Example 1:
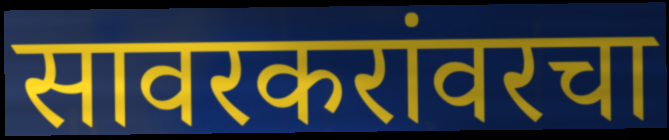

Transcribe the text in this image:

सावरकरांवरचा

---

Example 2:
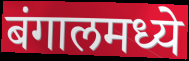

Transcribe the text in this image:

बंगालमध्ये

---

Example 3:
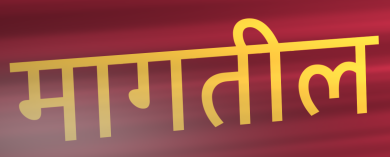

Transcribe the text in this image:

मागतील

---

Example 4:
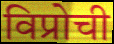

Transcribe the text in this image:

विप्रोची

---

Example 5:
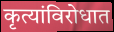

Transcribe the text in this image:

कृत्यांविरोधात